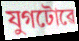
যুগটোৱে